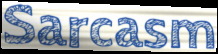
Sarcasm